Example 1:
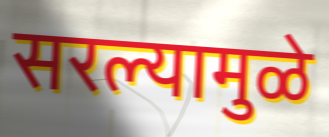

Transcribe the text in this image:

सरल्यामुळे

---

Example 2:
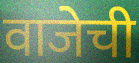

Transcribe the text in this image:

वाजेची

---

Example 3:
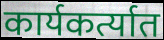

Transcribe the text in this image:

कार्यकर्त्यात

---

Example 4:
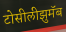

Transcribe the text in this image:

टोसीलीझुमॅब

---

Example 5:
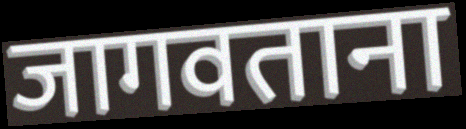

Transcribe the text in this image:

जागवताना